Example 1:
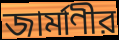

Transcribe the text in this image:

জার্মাণীর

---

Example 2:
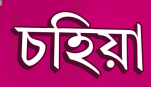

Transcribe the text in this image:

চহিয়া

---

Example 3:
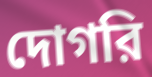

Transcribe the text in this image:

দোগরি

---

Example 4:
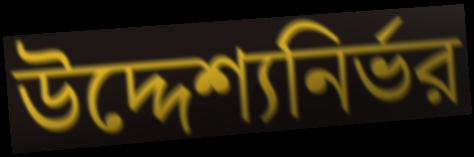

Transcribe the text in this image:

উদ্দেশ্যনির্ভর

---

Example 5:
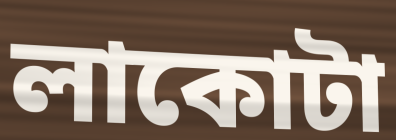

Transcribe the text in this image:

লাকোটা